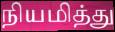
நியமித்து